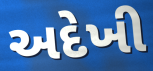
અદેખી